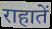
राहातें